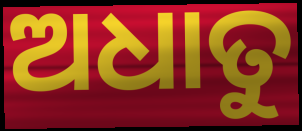
ଅଧାତୁ